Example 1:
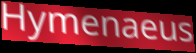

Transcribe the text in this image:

Hymenaeus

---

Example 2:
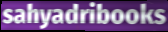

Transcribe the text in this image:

sahyadribooks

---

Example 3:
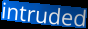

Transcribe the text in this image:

intruded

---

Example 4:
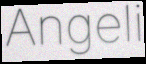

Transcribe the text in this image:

Angeli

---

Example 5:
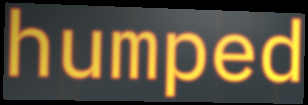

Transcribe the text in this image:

humped